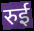
रुई